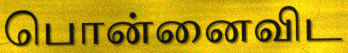
பொன்னைவிட